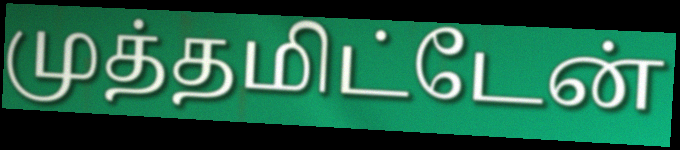
முத்தமிட்டேன்